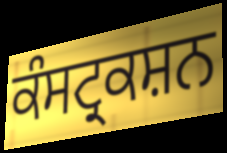
ਕੰਸਟ੍ਰਕਸ਼ਨ